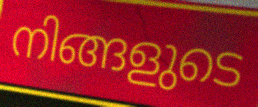
നിങ്ങളുടെ